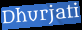
Dhurjati